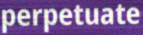
perpetuate